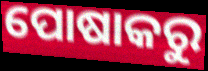
ପୋଷାକରୁ